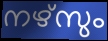
നഴ്സും